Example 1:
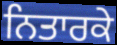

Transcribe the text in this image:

ਨਿਤਾਰਕੇ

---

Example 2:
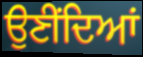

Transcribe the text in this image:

ਉਣੀਂਦਿਆਂ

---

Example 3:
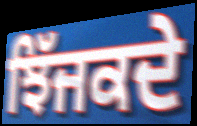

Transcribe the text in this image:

ਝਿੱਜਕਦੇ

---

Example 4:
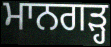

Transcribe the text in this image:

ਮਾਨਗੜ੍ਹ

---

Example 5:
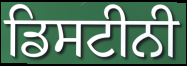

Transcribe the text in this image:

ਡਿਸਟੀਨੀ